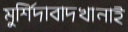
মুর্শিদাবাদখানাই